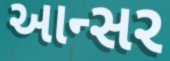
આન્સર